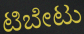
ಟಿಬೇಟು